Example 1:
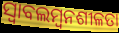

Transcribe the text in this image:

ସ୍ୱାବଲମ୍ୱନଶୀଳତା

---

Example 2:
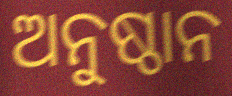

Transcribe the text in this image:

ଅନୁଷ୍ଠାନ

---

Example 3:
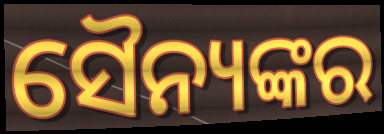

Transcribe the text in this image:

ସୈନ୍ୟଙ୍କର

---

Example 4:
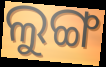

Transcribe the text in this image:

ଲୁଙ୍ଗ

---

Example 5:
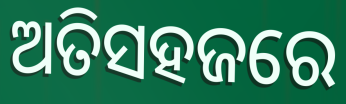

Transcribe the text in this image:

ଅତିସହଜରେ